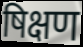
षिक्षण